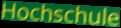
Hochschule